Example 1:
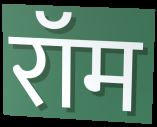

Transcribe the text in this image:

रॉम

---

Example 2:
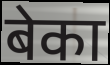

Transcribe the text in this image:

बेका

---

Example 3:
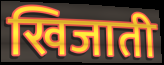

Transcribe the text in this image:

खिजाती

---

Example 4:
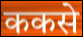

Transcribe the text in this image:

ककसे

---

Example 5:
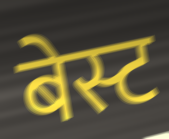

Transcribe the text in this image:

बेस्‍ट